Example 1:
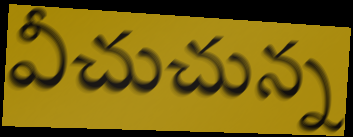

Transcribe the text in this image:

వీచుచున్న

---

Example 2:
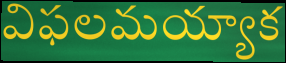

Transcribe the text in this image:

విఫలమయ్యాక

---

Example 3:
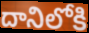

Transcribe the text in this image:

దానిలోకి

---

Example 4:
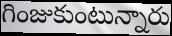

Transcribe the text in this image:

గింజుకుంటున్నారు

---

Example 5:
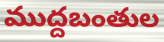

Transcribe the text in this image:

ముద్దబంతుల